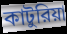
কাটুরিয়া